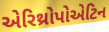
એરિથ્રોપોએટિન